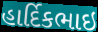
હાર્દિકભાઇ